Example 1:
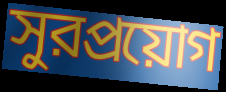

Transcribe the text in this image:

সুরপ্রয়োগ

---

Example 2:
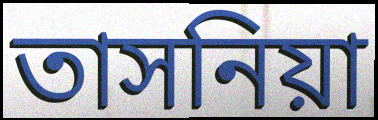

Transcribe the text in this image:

তাসনিয়া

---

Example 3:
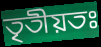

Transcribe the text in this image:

তৃতীয়তঃ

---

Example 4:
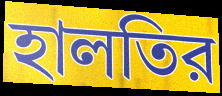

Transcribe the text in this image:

হালতির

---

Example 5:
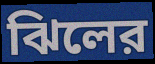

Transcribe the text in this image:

ঝিলের